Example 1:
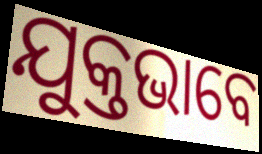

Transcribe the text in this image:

ଯୁକ୍ତଭାବେ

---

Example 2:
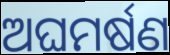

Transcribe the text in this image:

ଅଘମର୍ଷଣ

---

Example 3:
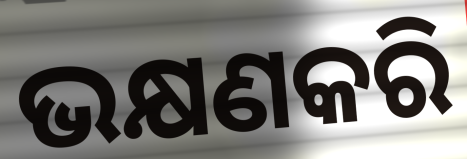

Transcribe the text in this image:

ଭକ୍ଷଣକରି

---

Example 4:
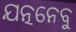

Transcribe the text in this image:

ଯତ୍ନନେବୁ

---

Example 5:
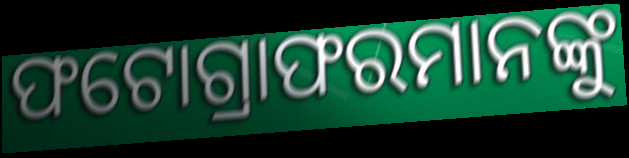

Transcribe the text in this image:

ଫଟୋଗ୍ରାଫରମାନଙ୍କୁ